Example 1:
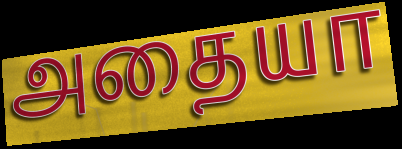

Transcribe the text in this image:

அதையா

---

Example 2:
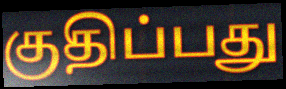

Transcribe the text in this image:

குதிப்பது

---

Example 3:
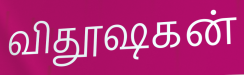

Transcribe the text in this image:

விதூஷகன்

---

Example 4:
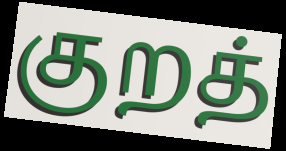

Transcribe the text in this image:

குறத்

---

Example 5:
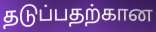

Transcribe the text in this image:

தடுப்பதற்கான